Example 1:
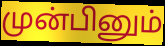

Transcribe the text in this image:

முன்பினும்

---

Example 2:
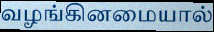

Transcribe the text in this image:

வழங்கினமையால்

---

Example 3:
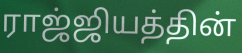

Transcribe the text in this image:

ராஜ்ஜியத்தின்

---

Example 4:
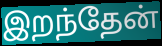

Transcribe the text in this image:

இறந்தேன்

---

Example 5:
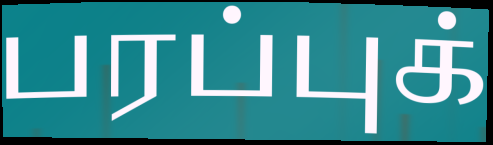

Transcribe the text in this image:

பரப்புக்